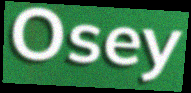
Osey